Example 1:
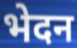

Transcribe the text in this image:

भेदन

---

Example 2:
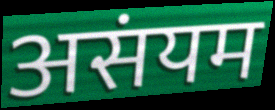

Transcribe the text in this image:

असंयम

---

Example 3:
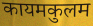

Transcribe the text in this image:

कायमकुलम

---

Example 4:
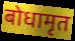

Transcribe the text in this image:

बोधामृत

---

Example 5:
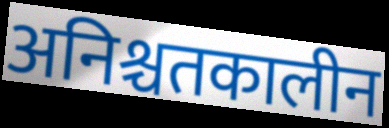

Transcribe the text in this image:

अनिश्चतकालीन